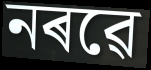
নৰৱে